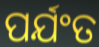
ପର୍ଯଂତ